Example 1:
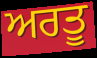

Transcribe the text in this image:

ਅਰਤੂ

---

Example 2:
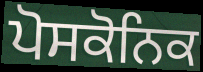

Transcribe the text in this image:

ਪੋਸਕੋਨਿਕ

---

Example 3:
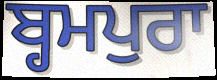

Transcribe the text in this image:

ਬ੍ਹਮਪੁਰਾ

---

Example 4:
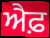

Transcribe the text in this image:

ਐਫ਼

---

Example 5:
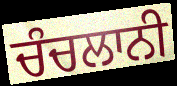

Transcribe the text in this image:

ਚੰਚਲਾਨੀ